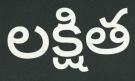
లక్షిత